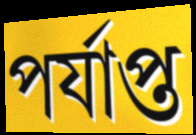
পর্যাপ্ত